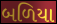
બળિયા